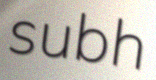
subh